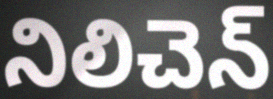
నిలిచెన్